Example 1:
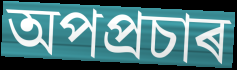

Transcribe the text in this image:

অপপ্ৰচাৰ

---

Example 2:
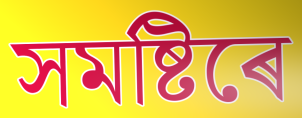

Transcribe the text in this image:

সমষ্টিৰে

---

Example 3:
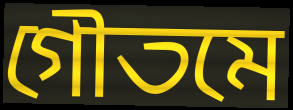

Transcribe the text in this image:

গৌতমে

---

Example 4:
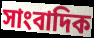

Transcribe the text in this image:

সাংবাদিক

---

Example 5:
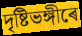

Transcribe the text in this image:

দৃষ্টিভঙ্গীৰে